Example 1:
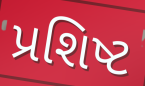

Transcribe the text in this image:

પ્રશિષ્ટ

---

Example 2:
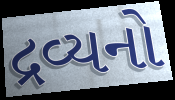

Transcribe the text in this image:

દ્રવ્યનો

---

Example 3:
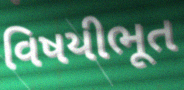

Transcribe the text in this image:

વિષયીભૂત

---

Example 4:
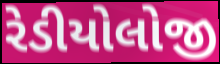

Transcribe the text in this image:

રેડીયોલોજી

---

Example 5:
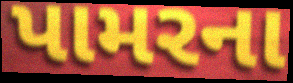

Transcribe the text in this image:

પામરના